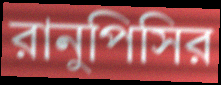
রানুপিসির